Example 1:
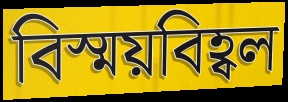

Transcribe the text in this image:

বিস্ময়বিহ্বল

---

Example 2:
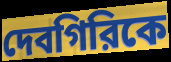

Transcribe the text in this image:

দেবগিরিকে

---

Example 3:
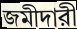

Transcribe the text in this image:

জমীদারী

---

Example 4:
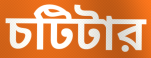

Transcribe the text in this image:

চটিটার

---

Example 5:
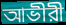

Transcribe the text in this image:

আভীরী